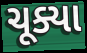
ચૂક્યા